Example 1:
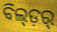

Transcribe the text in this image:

ବିଲ୍ଡ଼ର୍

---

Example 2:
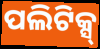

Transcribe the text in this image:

ପଲିଟିକ୍ସ୍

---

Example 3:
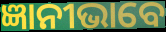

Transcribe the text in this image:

ଜ୍ଞାନୀଭାବେ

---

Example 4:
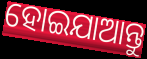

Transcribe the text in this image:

ହୋଇଯାଆନ୍ତୁ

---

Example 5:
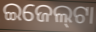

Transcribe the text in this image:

ଇଜେଲ୍‍ଟା